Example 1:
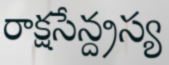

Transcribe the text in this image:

రాక్షసేన్ద్రస్య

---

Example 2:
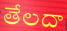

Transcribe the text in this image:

తేలదా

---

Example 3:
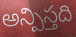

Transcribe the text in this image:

అన్పిస్తది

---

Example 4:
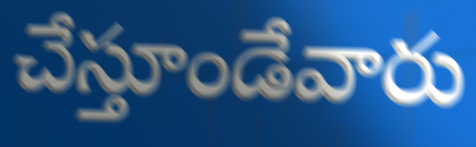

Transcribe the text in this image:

చేస్తూండేవారు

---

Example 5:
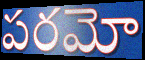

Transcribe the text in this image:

పరమో